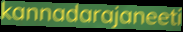
kannadarajaneeti